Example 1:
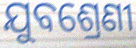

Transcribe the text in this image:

ଯୁବଶ୍ରେଣୀ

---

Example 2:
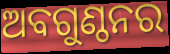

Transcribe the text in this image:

ଅବଗୁଣ୍ଠନର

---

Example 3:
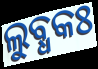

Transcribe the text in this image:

ଲୁବ୍ଧକଃ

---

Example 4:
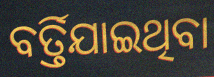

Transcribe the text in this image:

ବର୍ତ୍ତିଯାଇଥିବା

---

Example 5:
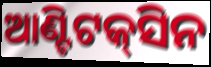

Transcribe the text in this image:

ଆଣ୍ଟିଟକ୍‌ସିନ